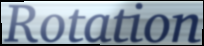
Rotation